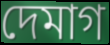
দেমাগ